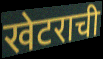
खेटराची